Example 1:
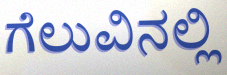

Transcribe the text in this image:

ಗೆಲುವಿನಲ್ಲಿ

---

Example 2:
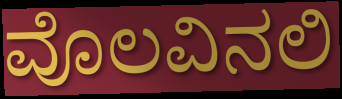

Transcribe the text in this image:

ವೊಲವಿನಲಿ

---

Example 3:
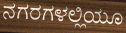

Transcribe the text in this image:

ನಗರಗಳಲ್ಲಿಯೂ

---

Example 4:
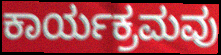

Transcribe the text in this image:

ಕಾರ್ಯಕ್ರಮವು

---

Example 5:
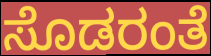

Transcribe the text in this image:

ಸೊಡರಂತೆ